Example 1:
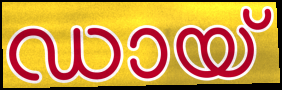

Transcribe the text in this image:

ഡായ്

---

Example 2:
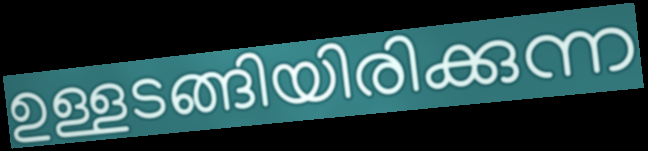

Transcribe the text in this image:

ഉള്ളടങ്ങിയിരിക്കുന്ന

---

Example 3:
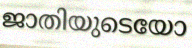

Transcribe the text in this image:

ജാതിയുടെയോ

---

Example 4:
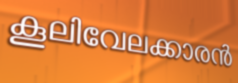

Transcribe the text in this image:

കൂലിവേലക്കാരൻ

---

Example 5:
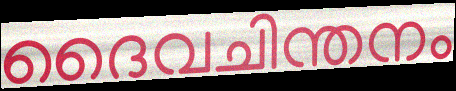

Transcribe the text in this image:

ദൈവചിന്തനം